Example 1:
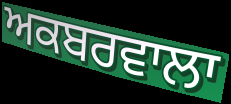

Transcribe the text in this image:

ਅਕਬਰਵਾਲਾ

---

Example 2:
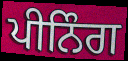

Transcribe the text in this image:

ਪੀਨਿੰਗ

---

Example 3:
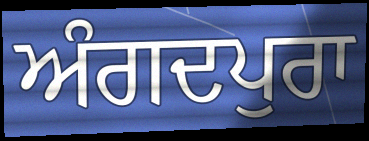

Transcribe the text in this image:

ਅੰਗਦਪੁਰਾ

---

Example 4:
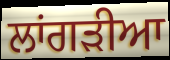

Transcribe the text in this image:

ਲਾਂਗੜੀਆ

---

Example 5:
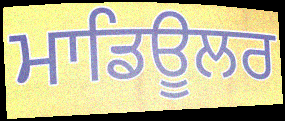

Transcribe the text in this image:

ਮਾਡਿਊਲਰ